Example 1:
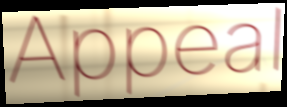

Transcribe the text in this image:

Appeal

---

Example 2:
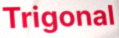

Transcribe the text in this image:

Trigonal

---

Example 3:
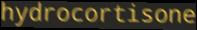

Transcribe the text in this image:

hydrocortisone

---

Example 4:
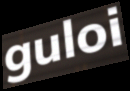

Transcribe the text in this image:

guloi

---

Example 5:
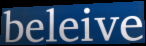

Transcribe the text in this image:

beleive